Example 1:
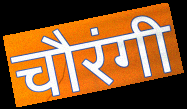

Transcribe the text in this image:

चौरंगी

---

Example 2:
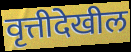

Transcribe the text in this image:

वृत्तीदेखील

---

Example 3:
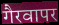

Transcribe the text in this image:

गैरवापर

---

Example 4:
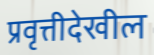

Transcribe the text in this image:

प्रवृत्तीदेखील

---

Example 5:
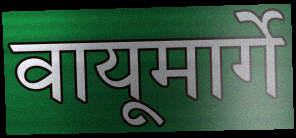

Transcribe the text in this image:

वायूमार्गे